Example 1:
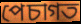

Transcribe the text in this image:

পেচাগত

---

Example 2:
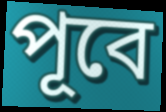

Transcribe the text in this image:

পূবে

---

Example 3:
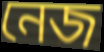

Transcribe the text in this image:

নেজ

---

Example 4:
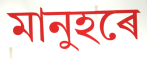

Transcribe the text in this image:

মানুহৰে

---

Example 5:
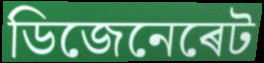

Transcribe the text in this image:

ডিজেনেৰেট